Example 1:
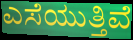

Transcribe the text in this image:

ಎಸೆಯುತ್ತಿವೆ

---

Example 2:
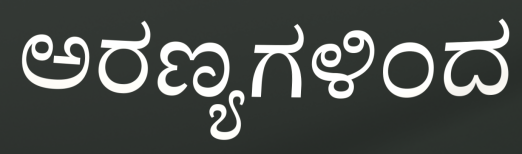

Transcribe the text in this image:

ಅರಣ್ಯಗಳಿಂದ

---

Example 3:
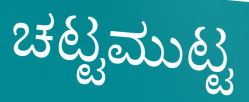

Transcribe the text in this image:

ಚಟ್ಟಮುಟ್ಟ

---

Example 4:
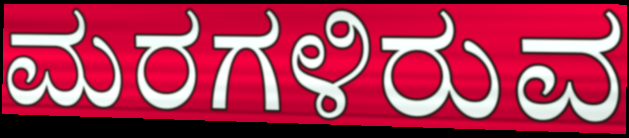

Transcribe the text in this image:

ಮರಗಳಿರುವ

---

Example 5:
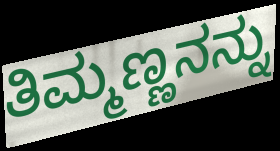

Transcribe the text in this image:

ತಿಮ್ಮಣ್ಣನನ್ನು